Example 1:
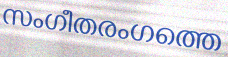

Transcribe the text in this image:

സംഗീതരംഗത്തെ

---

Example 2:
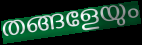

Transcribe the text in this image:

തങ്ങളേയും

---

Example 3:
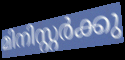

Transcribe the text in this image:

മിനിസ്റ്റർക്കു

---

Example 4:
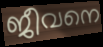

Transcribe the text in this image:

ജീവനെ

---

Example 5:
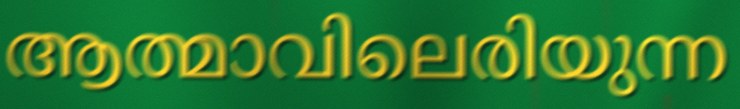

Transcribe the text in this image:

ആത്മാവിലെരിയുന്ന